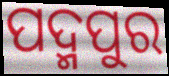
ପଦ୍ମପୁର